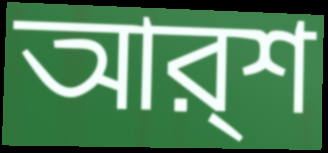
আর্‌শ